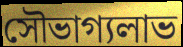
সৌভাগ্যলাভ